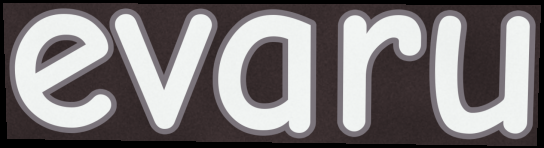
evaru